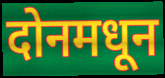
दोनमधून